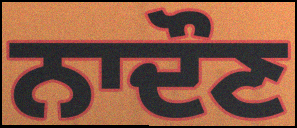
ਨਾਦੌਣ